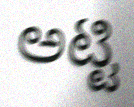
ಅಟ್ಟಿ